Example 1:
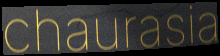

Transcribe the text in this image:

chaurasia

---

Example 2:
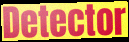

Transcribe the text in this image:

Detector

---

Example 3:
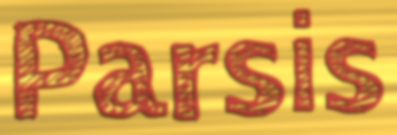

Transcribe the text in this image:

Parsis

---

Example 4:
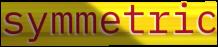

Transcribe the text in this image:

symmetric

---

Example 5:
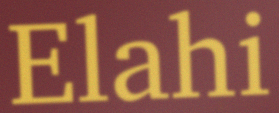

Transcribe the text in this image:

Elahi